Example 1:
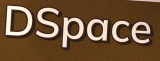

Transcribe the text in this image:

DSpace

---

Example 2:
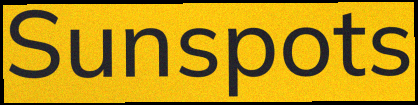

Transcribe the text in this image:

Sunspots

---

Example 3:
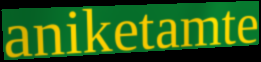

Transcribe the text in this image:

aniketamte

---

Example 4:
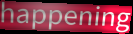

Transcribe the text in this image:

happening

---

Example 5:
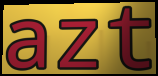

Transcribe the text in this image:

azt